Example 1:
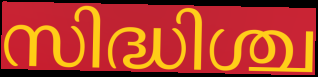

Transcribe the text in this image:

സിദ്ധിശ്ച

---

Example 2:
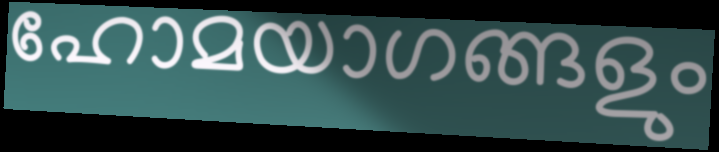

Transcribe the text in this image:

ഹോമയാഗങ്ങളും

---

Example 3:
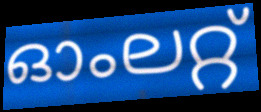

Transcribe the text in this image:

ഓംലറ്റ്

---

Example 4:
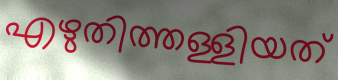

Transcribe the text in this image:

എഴുതിത്തള്ളിയത്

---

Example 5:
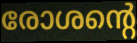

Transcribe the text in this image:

രോശന്റെ